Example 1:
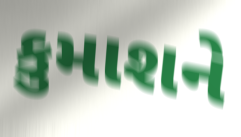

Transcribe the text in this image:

કુમાશને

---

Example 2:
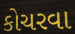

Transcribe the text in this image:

કોચરવા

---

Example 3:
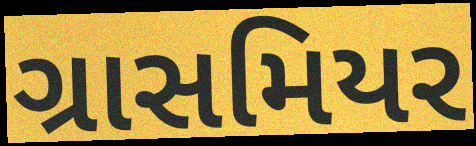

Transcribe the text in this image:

ગ્રાસમિયર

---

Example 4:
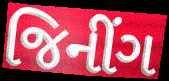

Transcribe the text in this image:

જિનીંગ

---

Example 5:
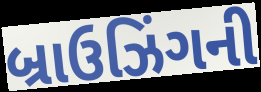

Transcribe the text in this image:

બ્રાઉઝિંગની